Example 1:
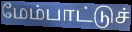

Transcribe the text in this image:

மேம்பாட்டுச்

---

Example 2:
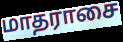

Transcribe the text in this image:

மாதராசை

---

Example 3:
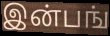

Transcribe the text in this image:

இன்பங்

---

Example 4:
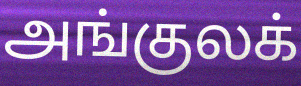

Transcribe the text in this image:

அங்குலக்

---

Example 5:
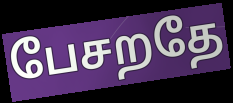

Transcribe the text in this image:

பேசறதே